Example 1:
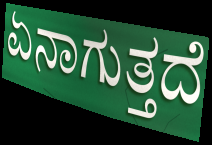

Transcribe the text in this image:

ಏನಾಗುತ್ತದೆ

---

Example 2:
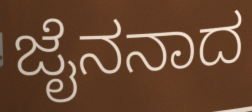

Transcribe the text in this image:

ಜೈನನಾದ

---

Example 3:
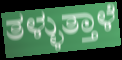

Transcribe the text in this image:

ತಳ್ಳುತ್ತಾಳೆ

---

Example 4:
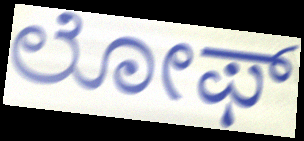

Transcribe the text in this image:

ಲೋಫ್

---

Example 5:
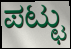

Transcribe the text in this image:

ಪಟ್ಟು